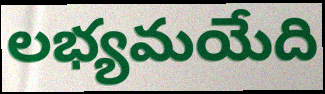
లభ్యమయేది